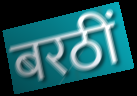
बरठीं